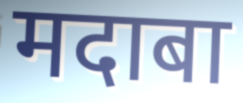
मदाबा